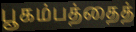
பூகம்பத்தைத்